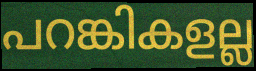
പറങ്കികളല്ല